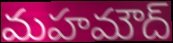
మహమౌద్